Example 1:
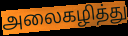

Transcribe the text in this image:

அலைகழித்து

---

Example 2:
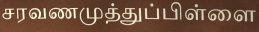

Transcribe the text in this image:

சரவணமுத்துப்பிள்ளை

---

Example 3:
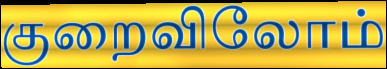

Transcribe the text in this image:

குறைவிலோம்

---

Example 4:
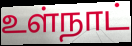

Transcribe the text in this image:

உள்நாட்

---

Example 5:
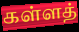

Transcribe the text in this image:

கள்ளத்